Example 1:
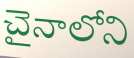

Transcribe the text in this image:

చైనాలోని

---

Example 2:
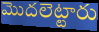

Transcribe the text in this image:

మొదలెట్టారు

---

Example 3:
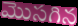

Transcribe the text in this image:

మొసగిన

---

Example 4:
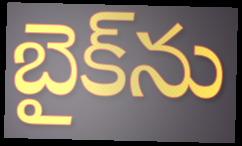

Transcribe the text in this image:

బైక్‌ను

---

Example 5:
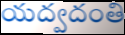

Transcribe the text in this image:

యద్వదంతి